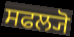
ਸਫਲ੍ਯੋ